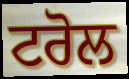
ਟਰੋਲ